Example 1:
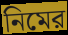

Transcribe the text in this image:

নিমের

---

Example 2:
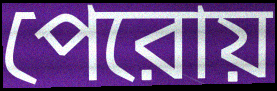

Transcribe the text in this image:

পেরোয়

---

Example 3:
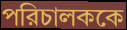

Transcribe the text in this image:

পরিচালককে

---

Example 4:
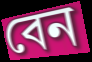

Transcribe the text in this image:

বেন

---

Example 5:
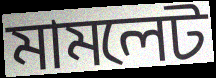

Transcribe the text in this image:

মামলেট